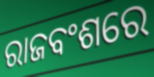
ରାଜବଂଶରେ